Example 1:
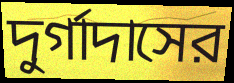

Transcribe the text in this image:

দুর্গাদাসের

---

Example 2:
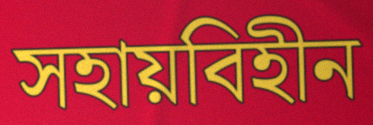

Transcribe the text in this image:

সহায়বিহীন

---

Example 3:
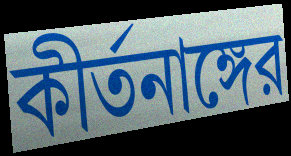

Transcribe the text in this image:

কীর্তনাঙ্গের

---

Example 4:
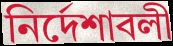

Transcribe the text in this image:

নির্দেশাবলী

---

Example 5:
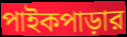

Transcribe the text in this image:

পাইকপাড়ার